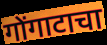
गोंगाटाचा